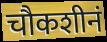
चौकशीनं